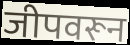
जीपवरून